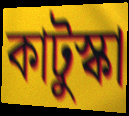
কাটুস্কা